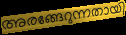
അരങ്ങേറുന്നതായി